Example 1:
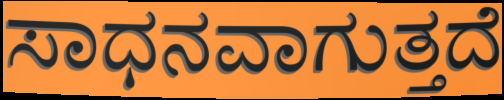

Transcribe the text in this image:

ಸಾಧನವಾಗುತ್ತದೆ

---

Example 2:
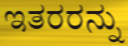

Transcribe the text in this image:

ಇತರರನ್ನು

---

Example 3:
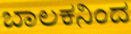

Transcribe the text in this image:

ಬಾಲಕನಿಂದ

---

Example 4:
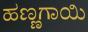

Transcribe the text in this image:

ಹಣ್ಣಗಾಯಿ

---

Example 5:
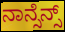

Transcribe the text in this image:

ನಾನ್ಸೆನ್ಸ್